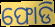
ଫୋଡି